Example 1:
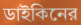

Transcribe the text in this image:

ডাইকিনের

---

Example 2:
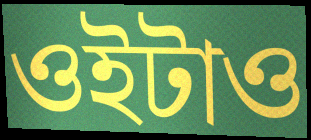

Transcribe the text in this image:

ওইটাও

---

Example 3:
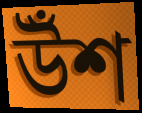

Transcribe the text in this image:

উঁশ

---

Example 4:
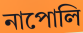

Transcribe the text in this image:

নাপোলি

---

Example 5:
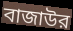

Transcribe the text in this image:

বাজাউর